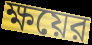
ক্ষয়ের